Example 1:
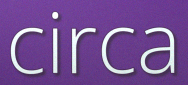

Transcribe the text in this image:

circa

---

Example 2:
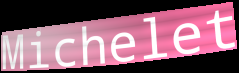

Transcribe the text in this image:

Michelet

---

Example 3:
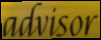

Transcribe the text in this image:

advisor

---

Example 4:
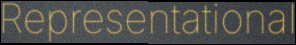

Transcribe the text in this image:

Representational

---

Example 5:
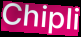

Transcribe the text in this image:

Chipli